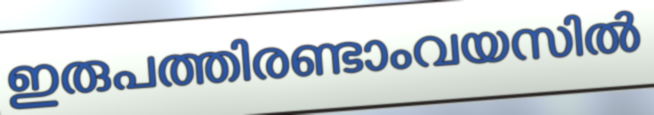
ഇരുപത്തിരണ്ടാംവയസിൽ